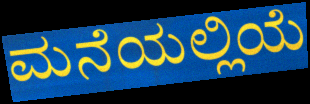
ಮನೆಯಲ್ಲಿಯೆ